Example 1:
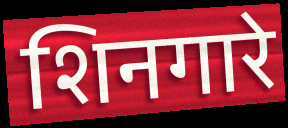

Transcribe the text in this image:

शिनगारे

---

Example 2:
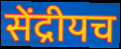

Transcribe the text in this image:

सेंद्रीयच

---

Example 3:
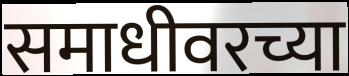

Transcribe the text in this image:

समाधीवरच्या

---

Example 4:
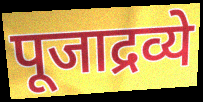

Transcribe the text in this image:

पूजाद्रव्ये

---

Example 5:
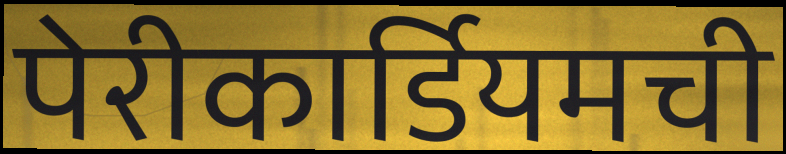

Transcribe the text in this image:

पेरीकार्डियमची